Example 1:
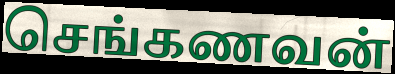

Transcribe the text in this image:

செங்கணவன்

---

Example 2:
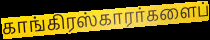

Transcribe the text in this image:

காங்கிரஸ்காரர்களைப்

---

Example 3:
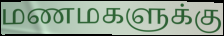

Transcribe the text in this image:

மணமகளுக்கு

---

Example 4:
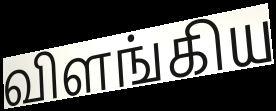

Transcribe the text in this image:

விளங்கிய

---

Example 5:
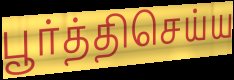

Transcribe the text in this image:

பூர்த்திசெய்ய